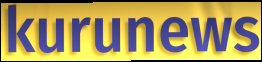
kurunews